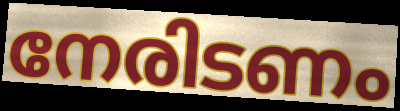
നേരിടണം